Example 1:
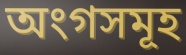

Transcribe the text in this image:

অংগসমূহ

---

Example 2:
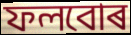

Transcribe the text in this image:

ফলবোৰ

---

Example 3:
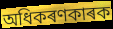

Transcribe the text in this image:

অধিকৰণকাৰক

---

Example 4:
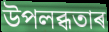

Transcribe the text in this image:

উপলব্ধতাৰ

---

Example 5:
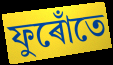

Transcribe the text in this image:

ফুৰোঁতে